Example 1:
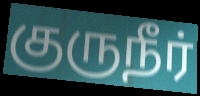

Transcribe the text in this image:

குருநீர்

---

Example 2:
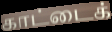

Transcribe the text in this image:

காட்டைக்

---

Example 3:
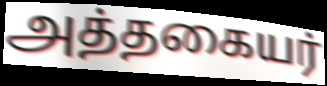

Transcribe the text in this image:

அத்தகையர்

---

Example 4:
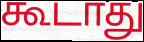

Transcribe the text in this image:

கூடாது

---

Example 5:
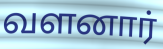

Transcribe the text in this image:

வளனார்